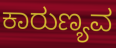
ಕಾರುಣ್ಯವ